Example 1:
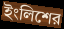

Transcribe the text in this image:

ইংলিশের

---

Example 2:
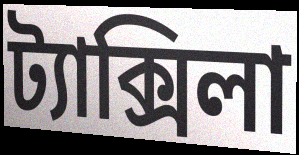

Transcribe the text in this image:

ট্যাক্সিলা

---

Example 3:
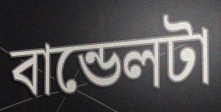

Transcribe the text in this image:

বান্ডেলটা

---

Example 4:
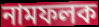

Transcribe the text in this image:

নামফলক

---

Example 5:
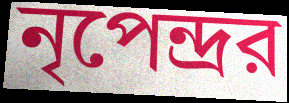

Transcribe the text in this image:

নৃপেন্দ্রর